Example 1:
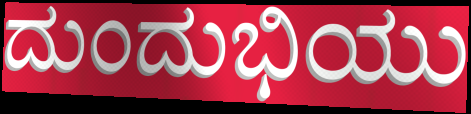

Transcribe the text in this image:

ದುಂದುಭಿಯು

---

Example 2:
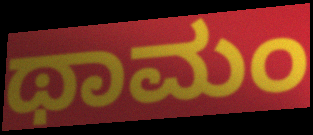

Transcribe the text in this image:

ಥಾಮಂ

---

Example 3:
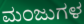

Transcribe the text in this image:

ಮಂಜುಗಳ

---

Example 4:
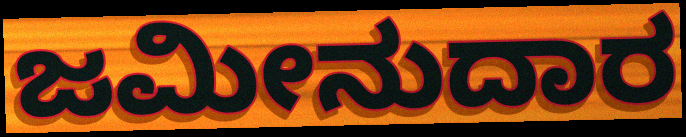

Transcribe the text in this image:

ಜಮೀನುದಾರ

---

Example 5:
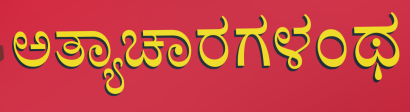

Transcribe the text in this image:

ಅತ್ಯಾಚಾರಗಳಂಥ